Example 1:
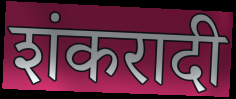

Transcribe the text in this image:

शंकरादी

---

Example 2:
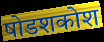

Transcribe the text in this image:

षोडशकोश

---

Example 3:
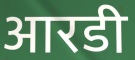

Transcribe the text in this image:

आरडी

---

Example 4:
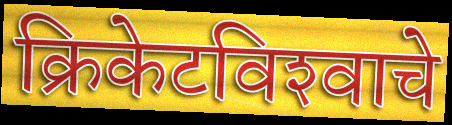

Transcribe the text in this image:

क्रिकेटविश्वाचे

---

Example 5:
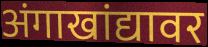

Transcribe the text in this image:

अंगाखांद्यावर